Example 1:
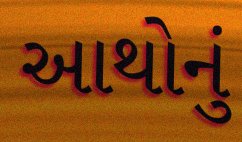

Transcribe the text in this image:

આથોનું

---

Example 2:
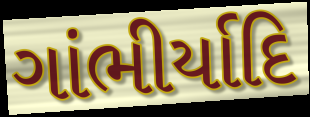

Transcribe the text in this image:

ગાંભીર્યાદિ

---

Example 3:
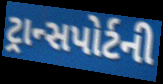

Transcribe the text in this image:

ટ્રાન્સપોર્ટની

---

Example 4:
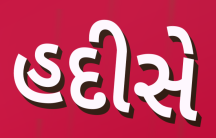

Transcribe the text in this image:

હદીસે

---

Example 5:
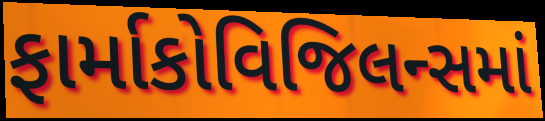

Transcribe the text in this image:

ફાર્માકોવિજિલન્સમાં